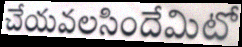
చేయవలసిందేమిటో